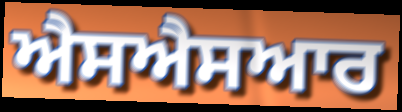
ਐਸਐਸਆਰ